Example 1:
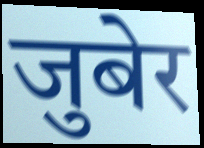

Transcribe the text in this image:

जुबेर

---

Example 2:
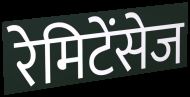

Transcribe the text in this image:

रेमिटेंसेज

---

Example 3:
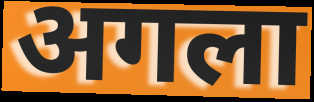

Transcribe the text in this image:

अगला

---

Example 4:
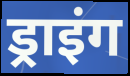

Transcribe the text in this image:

ड्राइंग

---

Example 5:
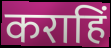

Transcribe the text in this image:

कराहिं